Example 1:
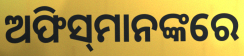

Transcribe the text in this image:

ଅଫିସ୍‌ମାନଙ୍କରେ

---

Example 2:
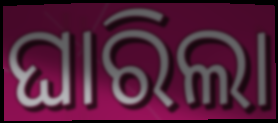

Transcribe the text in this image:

ଘାରିଲା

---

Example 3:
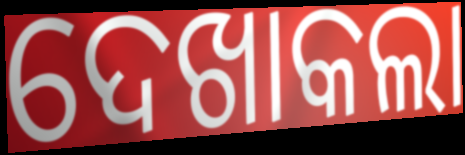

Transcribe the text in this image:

ଦେଖାକଲା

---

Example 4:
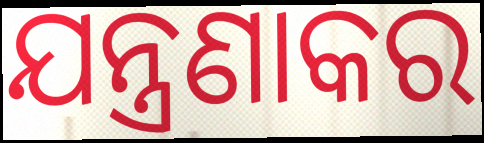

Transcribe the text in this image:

ଯନ୍ତ୍ରଣାକର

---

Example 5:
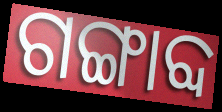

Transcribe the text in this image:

ଗଙ୍ଗାବ୍ଦ